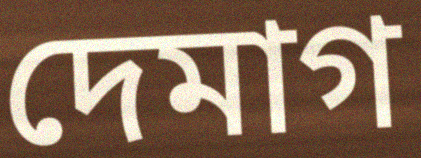
দেমাগ